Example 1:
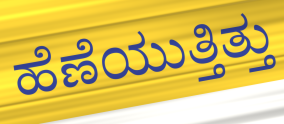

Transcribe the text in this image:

ಹೆಣೆಯುತ್ತಿತ್ತು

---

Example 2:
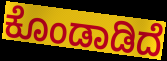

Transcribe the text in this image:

ಕೊಂಡಾಡಿದೆ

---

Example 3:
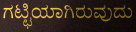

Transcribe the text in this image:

ಗಟ್ಟಿಯಾಗಿರುವುದು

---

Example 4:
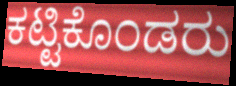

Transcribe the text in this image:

ಕಟ್ಟಿಕೊಂಡರು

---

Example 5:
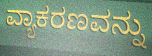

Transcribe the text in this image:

ವ್ಯಾಕರಣವನ್ನು